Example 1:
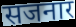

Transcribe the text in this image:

सजनार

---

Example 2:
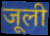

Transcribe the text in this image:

जूली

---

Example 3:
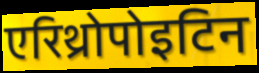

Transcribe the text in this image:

एरिथ्रोपोइटिन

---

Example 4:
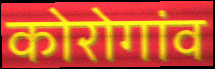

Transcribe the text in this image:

कोरोगांव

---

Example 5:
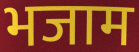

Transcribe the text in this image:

भजाम